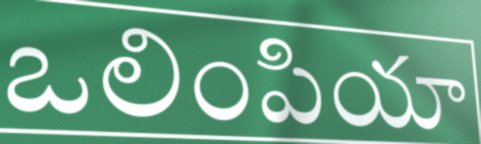
ఒలింపియా